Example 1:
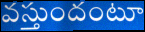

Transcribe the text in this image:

వస్తుందంటూ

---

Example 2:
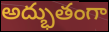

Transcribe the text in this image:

అద్భుతంగా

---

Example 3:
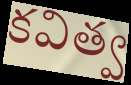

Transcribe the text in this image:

కవిత్వ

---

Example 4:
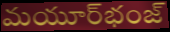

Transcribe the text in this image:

మయూర్‌భంజ్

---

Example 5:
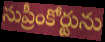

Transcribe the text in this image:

సుప్రీంకోర్టును